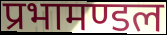
प्रभामण्डल